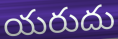
యరుదు